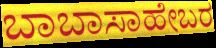
ಬಾಬಾಸಾಹೇಬರ